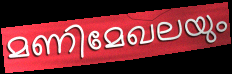
മണിമേഖലയും